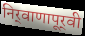
निर्वाणापूर्वी